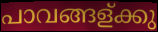
പാവങ്ങള്ക്കു